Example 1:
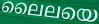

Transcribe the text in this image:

ലൈലയെ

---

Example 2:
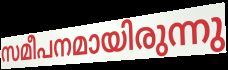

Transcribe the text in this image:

സമീപനമായിരുന്നു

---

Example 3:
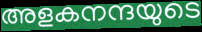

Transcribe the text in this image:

അളകനന്ദയുടെ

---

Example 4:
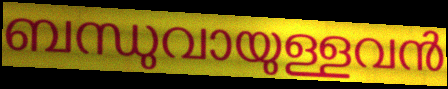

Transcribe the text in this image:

ബന്ധുവായുള്ളവൻ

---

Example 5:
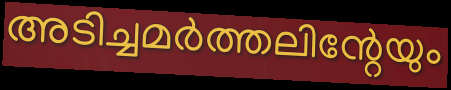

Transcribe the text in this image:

അടിച്ചമർത്തലിന്റേയും